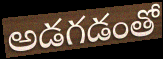
అడగడంతో